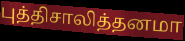
புத்திசாலித்தனமா